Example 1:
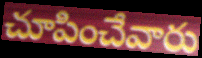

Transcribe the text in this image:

చూపించేవారు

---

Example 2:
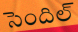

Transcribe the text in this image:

సెందిల్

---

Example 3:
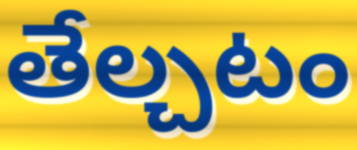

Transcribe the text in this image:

తేల్చటం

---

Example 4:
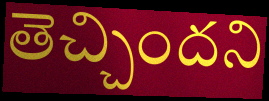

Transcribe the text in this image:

తెచ్చిందని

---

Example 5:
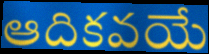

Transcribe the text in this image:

ఆదికవయే